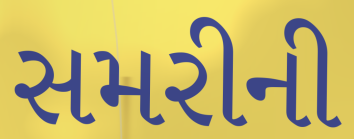
સમરીની